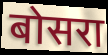
बोसरा